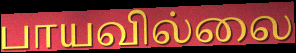
பாயவில்லை